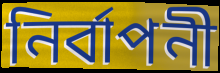
নির্বাপনী